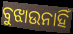
ବୁଝାଉନାହିଁ